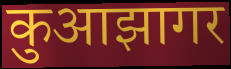
कुआझागर